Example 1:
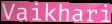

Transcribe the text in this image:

Vaikhari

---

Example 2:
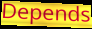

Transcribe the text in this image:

Depends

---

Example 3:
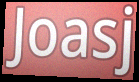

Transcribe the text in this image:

Joasj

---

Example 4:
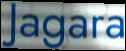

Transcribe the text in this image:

Jagara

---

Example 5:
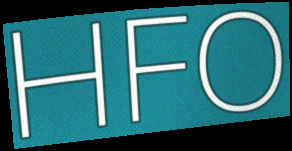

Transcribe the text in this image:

HFO